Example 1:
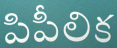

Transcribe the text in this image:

పిపీలిక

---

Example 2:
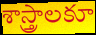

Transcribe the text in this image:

శాస్త్రాలకూ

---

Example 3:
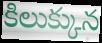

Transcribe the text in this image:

కిలుక్కున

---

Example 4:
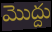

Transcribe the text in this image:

మొద్దు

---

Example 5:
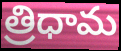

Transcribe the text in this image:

త్రిధామ